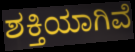
ಶಕ್ತಿಯಾಗಿವೆ